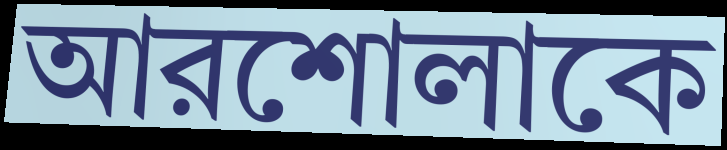
আরশোলাকে